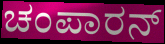
ಚಂಪಾರನ್